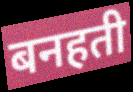
बनहती